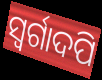
ସ୍ୱର୍ଗାଦପି